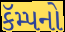
કૅમ્પનો